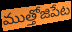
ముత్తోజిపేట